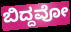
ಬಿದ್ದವೋ